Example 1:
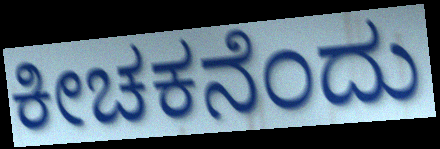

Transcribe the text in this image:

ಕೀಚಕನೆಂದು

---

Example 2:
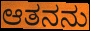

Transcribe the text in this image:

ಆತನನು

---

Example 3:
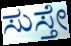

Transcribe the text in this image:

ಸುಸ್ತೇ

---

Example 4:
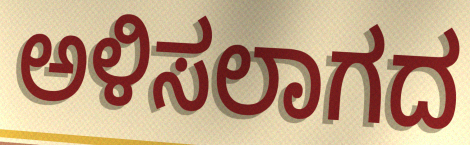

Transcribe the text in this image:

ಅಳಿಸಲಾಗದ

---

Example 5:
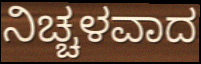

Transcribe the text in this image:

ನಿಚ್ಚಳವಾದ